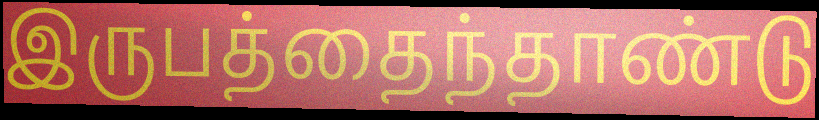
இருபத்தைந்தாண்டு